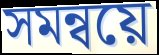
সমন্বয়ে